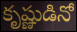
కృష్ణుడినో